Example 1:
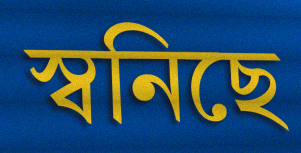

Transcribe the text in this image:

স্বনিছে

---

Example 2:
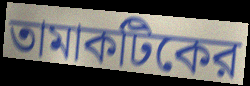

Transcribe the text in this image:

তামাকটিকের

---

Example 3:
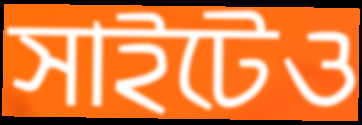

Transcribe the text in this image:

সাইটেও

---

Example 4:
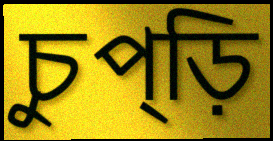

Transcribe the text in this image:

চুপ্‌ড়ি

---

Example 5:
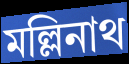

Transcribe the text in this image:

মল্লিনাথ